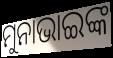
ମୁନାଭାଇଙ୍କ